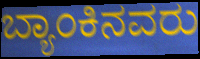
ಬ್ಯಾಂಕಿನವರು